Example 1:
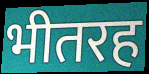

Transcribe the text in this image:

भीतरह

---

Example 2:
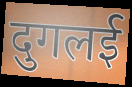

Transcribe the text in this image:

दुगलई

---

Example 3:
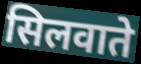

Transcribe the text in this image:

सिलवाते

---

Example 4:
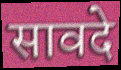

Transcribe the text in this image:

सावदे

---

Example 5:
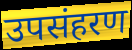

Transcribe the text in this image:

उपसंहरण